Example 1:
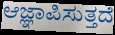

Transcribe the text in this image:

ಆಜ್ಞಾಪಿಸುತ್ತದೆ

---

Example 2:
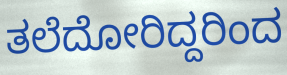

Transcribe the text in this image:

ತಲೆದೋರಿದ್ದರಿಂದ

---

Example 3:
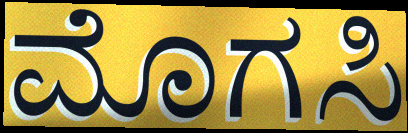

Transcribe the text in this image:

ಮೊಗಸಿ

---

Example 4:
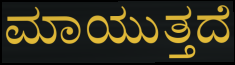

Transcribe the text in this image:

ಮಾಯುತ್ತದೆ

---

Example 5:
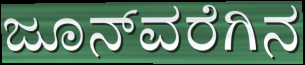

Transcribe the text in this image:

ಜೂನ್‌ವರೆಗಿನ